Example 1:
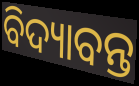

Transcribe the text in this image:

ବିଦ୍ୟାବନ୍ତ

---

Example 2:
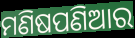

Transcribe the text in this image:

ମଣିଷପଣିଆର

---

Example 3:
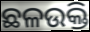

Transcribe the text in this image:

ଛଳଉକ୍ତି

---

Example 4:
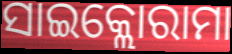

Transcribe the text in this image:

ସାଇକ୍ଲୋରାମା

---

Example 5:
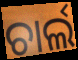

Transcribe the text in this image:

ଚାର୍ଲ